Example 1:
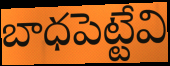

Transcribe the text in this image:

బాధపెట్టేవి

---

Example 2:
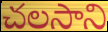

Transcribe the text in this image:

చలసాని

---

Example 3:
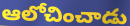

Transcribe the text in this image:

ఆలోచించాడు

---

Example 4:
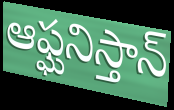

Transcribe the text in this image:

ఆఫ్ఘనిస్తాన్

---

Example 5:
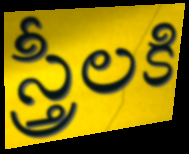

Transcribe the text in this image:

స్త్రీలకి